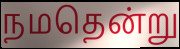
நமதென்று